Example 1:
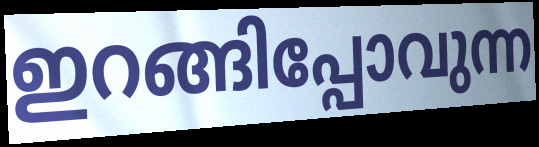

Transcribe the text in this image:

ഇറങ്ങിപ്പോവുന്ന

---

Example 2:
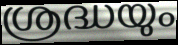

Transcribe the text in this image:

ശ്രദ്ധയും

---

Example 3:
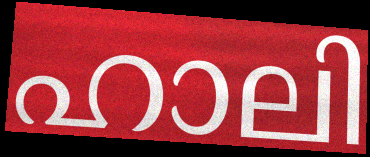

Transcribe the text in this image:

ഹാലി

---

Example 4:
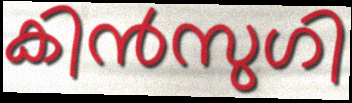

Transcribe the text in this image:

കിൻസുഗി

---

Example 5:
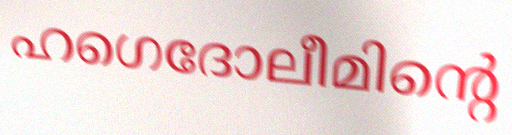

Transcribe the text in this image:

ഹഗെദോലീമിന്റെ